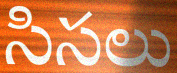
సిసలు